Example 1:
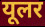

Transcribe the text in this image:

यूलर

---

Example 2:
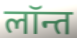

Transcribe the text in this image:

लॉन्त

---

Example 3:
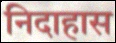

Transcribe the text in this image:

निदाहास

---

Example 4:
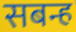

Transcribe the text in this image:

सबन्ह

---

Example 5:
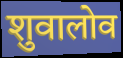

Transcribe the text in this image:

शुवालोव